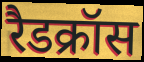
रैडक्रॉस